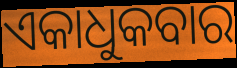
ଏକାଧୁକବାର